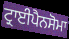
ਟ੍ਰਾਈਪੈਨਸੋਮਾ